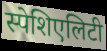
स्पेशिएलिटी